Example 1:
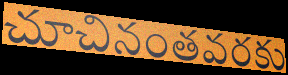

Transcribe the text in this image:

చూచినంతవరకు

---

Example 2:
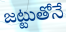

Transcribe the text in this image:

జట్టుతోనే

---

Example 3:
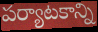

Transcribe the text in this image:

పర్యాటకాన్ని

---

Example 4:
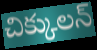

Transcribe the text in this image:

చిక్కులన్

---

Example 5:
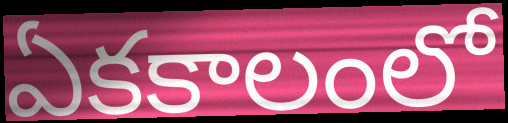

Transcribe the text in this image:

ఏకకాలంలో